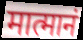
मात्मानं